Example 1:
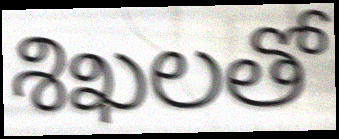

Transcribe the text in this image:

శిఖలతో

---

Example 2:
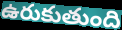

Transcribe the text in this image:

ఉరుకుతుంది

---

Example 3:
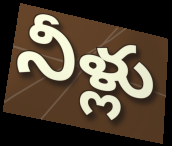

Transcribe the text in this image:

నీళ్లు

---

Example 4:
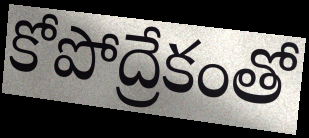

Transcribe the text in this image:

కోపోద్రేకంతో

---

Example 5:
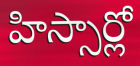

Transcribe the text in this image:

హిస్సార్లో